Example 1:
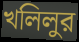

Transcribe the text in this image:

খলিলুর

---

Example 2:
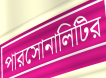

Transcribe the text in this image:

পারসোনালিটির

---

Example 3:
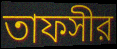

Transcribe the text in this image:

তাফসীর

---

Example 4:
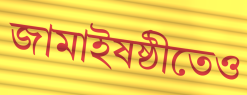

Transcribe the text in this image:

জামাইষষ্ঠীতেও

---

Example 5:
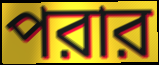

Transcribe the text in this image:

পরার